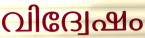
വിദ്വേഷം